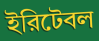
ইরিটেবল